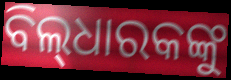
ବିଲ୍‌ଧାରକଙ୍କୁ